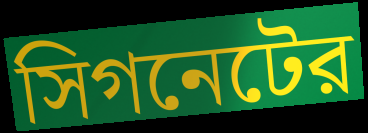
সিগনেটের